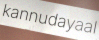
kannudayaal